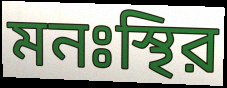
মনঃস্থির